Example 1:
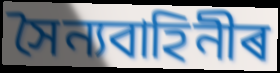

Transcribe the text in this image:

সৈন্যবাহিনীৰ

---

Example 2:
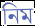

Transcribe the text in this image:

নিম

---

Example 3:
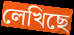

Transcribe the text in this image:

লেখিছে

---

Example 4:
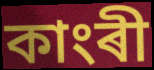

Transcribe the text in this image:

কাংৰী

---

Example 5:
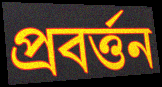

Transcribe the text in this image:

প্ৰবৰ্ত্তন